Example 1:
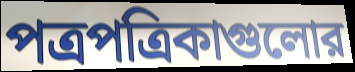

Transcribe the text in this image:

পত্রপত্রিকাগুলোর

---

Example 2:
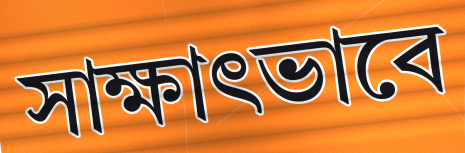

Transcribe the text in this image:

সাক্ষাৎভাবে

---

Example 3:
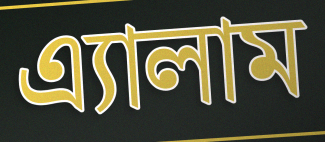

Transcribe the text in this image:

এ্যালাম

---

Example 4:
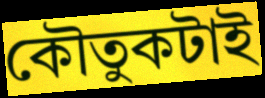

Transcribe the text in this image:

কৌতুকটাই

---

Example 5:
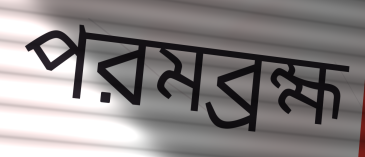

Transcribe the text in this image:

পরমব্রহ্ম